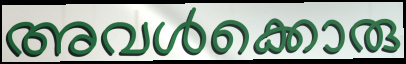
അവൾക്കൊരു